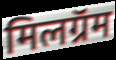
मिलग्रॅम